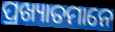
ପ୍ରଖ୍ୟାତମାନେ